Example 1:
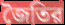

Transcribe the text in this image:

জৈতির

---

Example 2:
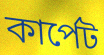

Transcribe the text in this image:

কার্পেট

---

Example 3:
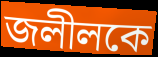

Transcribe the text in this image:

জলীলকে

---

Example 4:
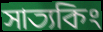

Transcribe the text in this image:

সাত্যকিং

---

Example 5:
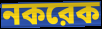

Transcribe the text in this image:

নকরেক